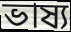
ভাষ্য